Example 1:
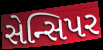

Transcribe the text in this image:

સેન્સિપર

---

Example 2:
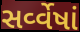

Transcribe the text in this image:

સર્વ્વેષાં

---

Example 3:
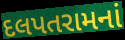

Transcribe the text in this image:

દલપતરામનાં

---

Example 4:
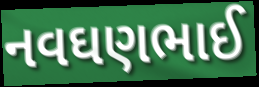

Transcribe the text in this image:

નવઘણભાઈ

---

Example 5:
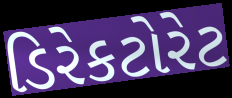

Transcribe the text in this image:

ડિરેકટોરેટ